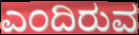
ಎಂದಿರುವ